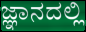
ಜ್ಞಾನದಲ್ಲಿ